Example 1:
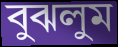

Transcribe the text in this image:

বুঝলুম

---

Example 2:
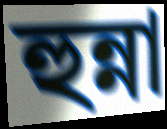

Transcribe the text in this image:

হুন্না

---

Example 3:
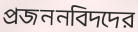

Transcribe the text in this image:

প্রজননবিদদের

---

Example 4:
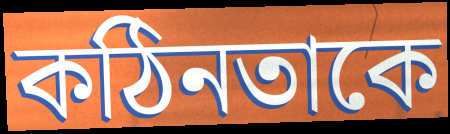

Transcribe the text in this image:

কঠিনতাকে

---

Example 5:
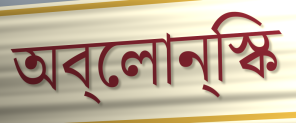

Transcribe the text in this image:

অব্‌লোন্‌স্কি